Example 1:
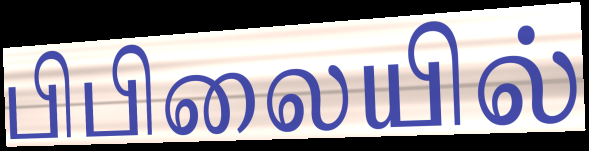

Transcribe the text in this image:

பிபிலையில்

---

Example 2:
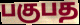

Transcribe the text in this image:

பகுபத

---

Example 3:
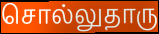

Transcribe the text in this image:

சொல்லுதாரு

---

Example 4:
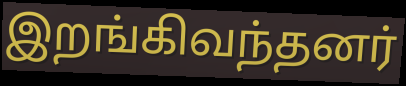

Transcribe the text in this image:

இறங்கிவந்தனர்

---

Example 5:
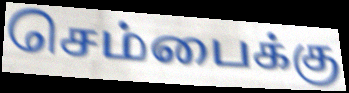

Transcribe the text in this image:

செம்பைக்கு